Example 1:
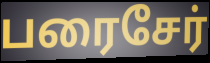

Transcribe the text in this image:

பரைசேர்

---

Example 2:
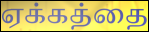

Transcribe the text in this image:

ஏக்கத்தை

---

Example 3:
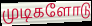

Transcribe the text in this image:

முடிகளோடு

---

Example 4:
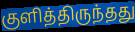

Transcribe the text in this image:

குளித்திருந்தது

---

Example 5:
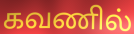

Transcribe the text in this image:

கவணில்